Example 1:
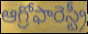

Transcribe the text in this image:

ఆగ్రోఫారెస్ట్రీ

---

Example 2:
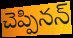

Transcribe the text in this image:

చెప్పినన్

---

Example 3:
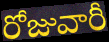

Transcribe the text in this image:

రోజువారీ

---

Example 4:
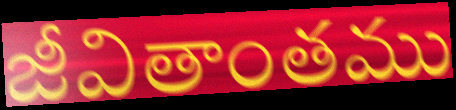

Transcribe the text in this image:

జీవితాంతము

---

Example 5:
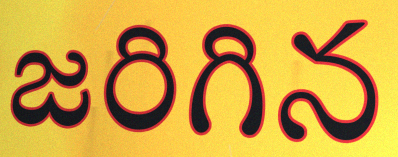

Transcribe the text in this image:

జరిగిన